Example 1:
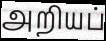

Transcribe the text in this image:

அறியப்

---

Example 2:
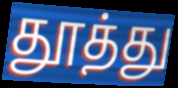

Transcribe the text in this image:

தூத்து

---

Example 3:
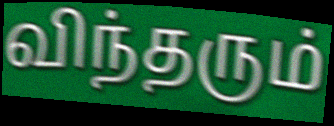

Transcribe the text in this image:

விந்தரும்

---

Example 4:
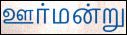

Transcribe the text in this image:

ஊர்மன்று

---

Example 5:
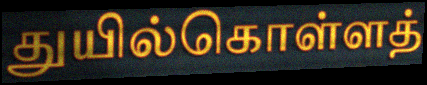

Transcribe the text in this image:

துயில்கொள்ளத்